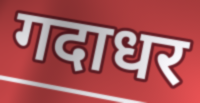
गदाधर